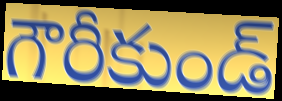
గౌరీకుండ్